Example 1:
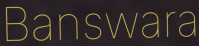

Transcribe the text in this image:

Banswara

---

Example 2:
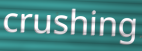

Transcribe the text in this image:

crushing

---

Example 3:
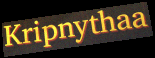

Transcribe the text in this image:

Kripnythaa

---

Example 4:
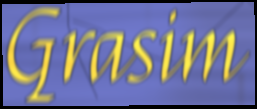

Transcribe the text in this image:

Grasim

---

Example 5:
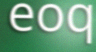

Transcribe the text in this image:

eoq